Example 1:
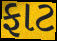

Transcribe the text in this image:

ફાટ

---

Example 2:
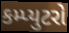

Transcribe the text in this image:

કમ્પ્યુટરો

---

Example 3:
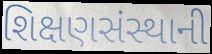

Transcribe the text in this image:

શિક્ષણસંસ્થાની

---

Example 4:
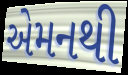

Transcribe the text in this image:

એમનથી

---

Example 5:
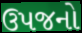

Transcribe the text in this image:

ઉપજનો